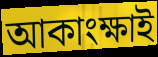
আকাংক্ষাই